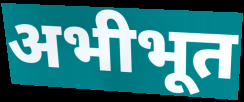
अभीभूत